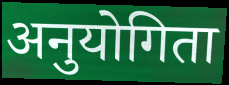
अनुयोगिता